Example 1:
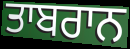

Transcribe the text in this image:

ਤਾਬਰਾਨ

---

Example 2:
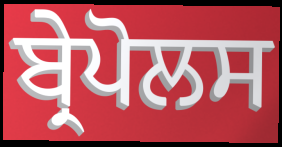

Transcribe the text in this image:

ਬ੍ਰੇਪੋਲਸ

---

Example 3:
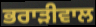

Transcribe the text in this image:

ਭਰਾੜੀਵਾਲ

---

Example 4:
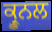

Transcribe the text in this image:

ਕ੍ਰੂਨਲ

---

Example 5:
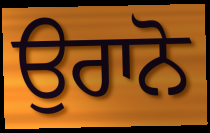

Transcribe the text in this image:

ਉਰਾਨੋ